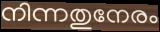
നിന്നതുനേരം